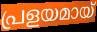
പ്രളയമായ്